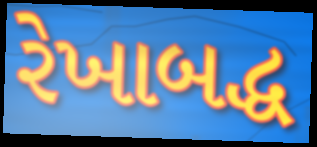
રેખાબદ્ધ